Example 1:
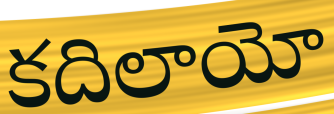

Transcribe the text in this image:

కదిలాయో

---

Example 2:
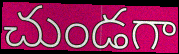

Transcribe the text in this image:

చుండగా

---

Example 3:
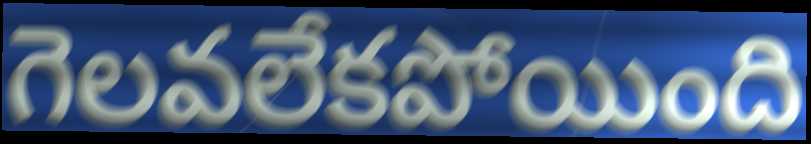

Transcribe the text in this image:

గెలవలేకపోయింది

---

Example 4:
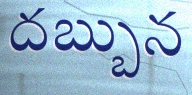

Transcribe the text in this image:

దబ్బున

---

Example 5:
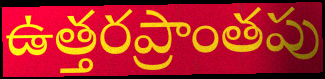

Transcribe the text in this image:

ఉత్తరప్రాంతపు